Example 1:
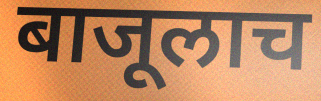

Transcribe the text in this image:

बाजूलाच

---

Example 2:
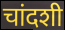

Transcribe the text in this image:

चांदशी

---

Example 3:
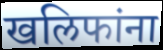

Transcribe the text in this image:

खलिफांना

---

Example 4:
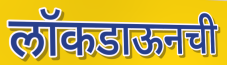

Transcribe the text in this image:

लॉकडाऊनची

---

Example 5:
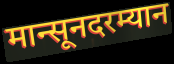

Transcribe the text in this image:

मान्सूनदरम्यान